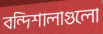
বন্দিশালাগুলো